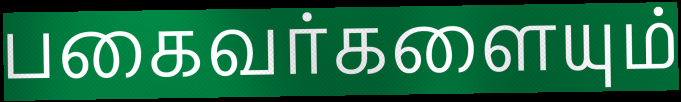
பகைவர்களையும்